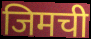
जिमची